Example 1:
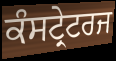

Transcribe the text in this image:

ਕੰਸਟ੍ਰੇਟਰਜ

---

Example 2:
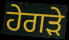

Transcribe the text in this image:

ਹੇਗੜੇ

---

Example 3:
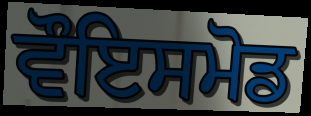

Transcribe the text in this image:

ਵੌਇਸਮੋਡ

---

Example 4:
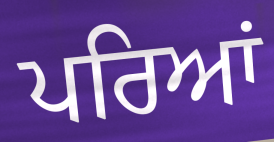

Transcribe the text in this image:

ਪਰਿਆਂ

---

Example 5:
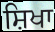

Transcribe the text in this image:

ਸ਼ਿਖਾ